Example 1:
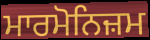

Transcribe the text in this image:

ਮਾਰਮੋਨਿਜ਼ਮ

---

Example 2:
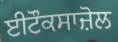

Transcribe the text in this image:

ਈਟੌਕਸਾਜ਼ੋਲ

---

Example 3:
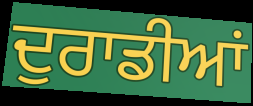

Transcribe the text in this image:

ਦੁਰਾਡੀਆਂ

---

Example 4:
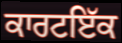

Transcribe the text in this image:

ਕਾਰਟਇੱਕ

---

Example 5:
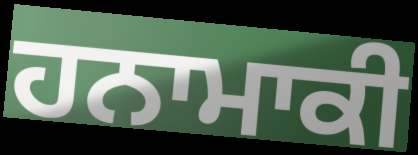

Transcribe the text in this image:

ਹਨਾਮਾਕੀ